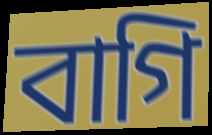
বাগি